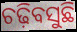
ଚଢ଼ିବସୁଛି